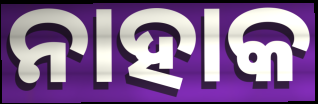
ନାହାକ